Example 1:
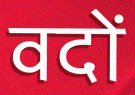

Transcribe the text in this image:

वदों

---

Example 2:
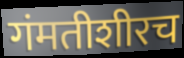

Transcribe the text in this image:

गंमतीशीरच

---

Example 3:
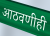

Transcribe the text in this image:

आठवणीही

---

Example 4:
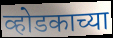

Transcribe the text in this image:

व्होडकाच्या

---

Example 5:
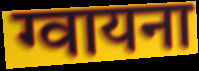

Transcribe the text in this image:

ग्वायना